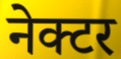
नेक्टर